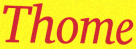
Thome